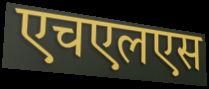
एचएलएस